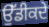
ਉੱਡੀਕਦੇ